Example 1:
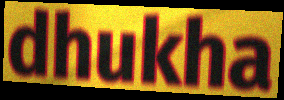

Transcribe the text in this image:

dhukha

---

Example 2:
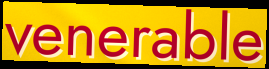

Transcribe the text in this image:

venerable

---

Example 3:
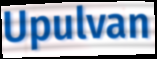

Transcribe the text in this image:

Upulvan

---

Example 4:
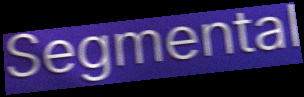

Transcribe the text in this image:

Segmental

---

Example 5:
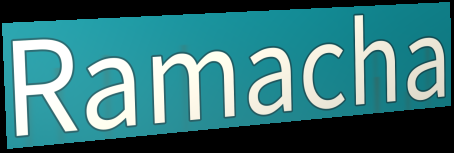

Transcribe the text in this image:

Ramacha